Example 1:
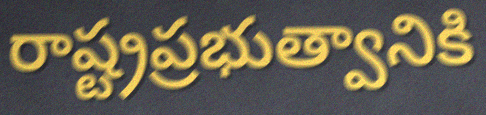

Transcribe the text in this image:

రాష్ట్రప్రభుత్వానికి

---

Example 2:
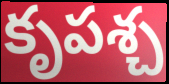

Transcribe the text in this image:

కృపశ్చ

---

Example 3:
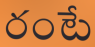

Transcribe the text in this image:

రంటే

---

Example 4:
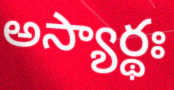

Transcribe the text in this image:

అస్యార్థః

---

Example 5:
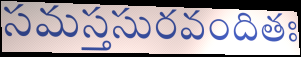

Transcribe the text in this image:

సమస్తసురవందితః